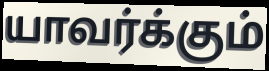
யாவர்க்கும்